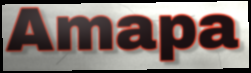
Amapa